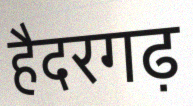
हैदरगढ़